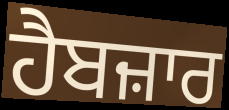
ਹੈਬਜ਼ਾਰ